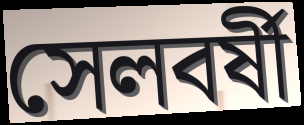
সেলবর্ষী